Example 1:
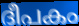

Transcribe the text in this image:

ദീപകം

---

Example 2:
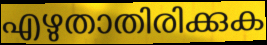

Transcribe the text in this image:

എഴുതാതിരിക്കുക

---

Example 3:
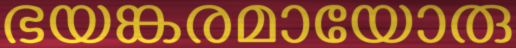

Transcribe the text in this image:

ഭയങ്കരമായോരു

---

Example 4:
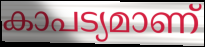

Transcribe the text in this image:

കാപട്യമാണ്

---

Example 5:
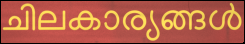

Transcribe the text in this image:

ചിലകാര്യങ്ങൾ